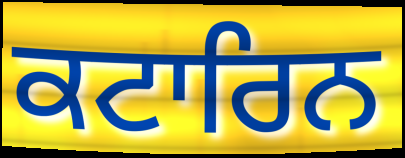
ਕਟਾਰਿਨ